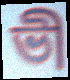
ভী